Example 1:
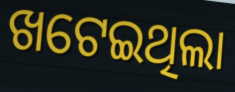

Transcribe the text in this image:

ଖଟେଇଥିଲା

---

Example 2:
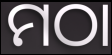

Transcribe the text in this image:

ମଠା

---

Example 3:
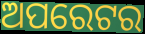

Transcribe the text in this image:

ଅପରେଟର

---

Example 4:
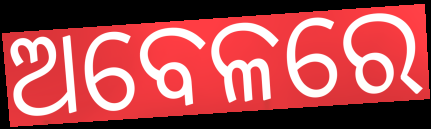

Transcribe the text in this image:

ଅବେଳରେ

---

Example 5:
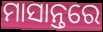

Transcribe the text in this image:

ମାସାନ୍ତରେ